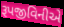
રૂપજીવિનીએ